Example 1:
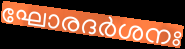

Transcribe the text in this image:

ഘോരദർശനഃ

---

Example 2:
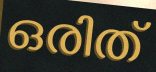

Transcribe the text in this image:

ഒരിത്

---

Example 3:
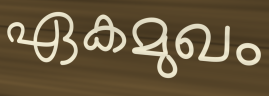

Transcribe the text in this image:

ഏകമുഖം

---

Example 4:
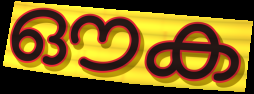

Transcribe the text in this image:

ഔക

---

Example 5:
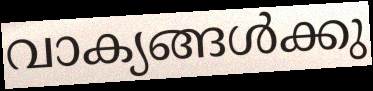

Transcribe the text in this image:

വാക്യങ്ങൾക്കു